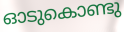
ഓടുകൊണ്ടു